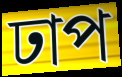
ঢাপ